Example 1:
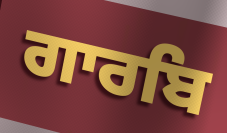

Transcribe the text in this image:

ਗਾਰਬਿ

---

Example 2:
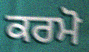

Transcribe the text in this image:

ਕਰਮੋ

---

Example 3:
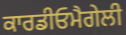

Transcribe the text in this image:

ਕਾਰਡੀਓਮੈਗੇਲੀ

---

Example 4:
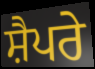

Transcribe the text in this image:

ਸ਼ੈਪਰੇ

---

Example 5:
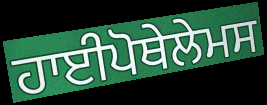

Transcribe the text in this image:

ਹਾਈਪੋਥੇਲੇਮਸ